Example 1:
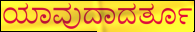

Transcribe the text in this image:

ಯಾವುದಾದರ್ತೂ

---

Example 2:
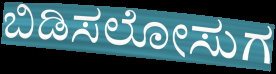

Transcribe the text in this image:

ಬಿಡಿಸಲೋಸುಗ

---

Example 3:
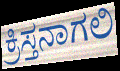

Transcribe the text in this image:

ಕ್ರಿಸ್ತನಾಗಲಿ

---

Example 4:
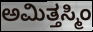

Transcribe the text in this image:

ಅಮಿತ್ತಸ್ಮಿಂ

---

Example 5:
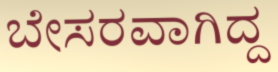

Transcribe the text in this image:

ಬೇಸರವಾಗಿದ್ದ